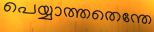
പെയ്യാത്തതെന്തേ